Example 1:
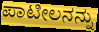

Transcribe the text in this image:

ಪಾಟೀಲನನ್ನು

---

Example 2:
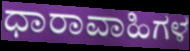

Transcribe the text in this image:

ಧಾರಾವಾಹಿಗಳ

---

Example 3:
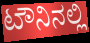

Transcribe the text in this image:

ಟೌನಿನಲ್ಲಿ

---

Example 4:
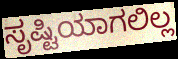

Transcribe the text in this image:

ಸೃಷ್ಟಿಯಾಗಲಿಲ್ಲ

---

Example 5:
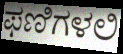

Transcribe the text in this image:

ಫಣಿಗಳಲಿ